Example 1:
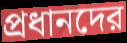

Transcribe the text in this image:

প্রধানদের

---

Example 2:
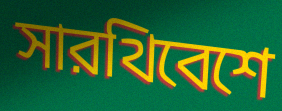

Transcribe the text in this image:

সারথিবেশে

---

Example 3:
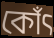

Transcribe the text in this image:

কোঁৎ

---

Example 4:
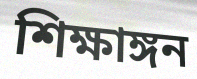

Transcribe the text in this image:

শিক্ষাঙ্গন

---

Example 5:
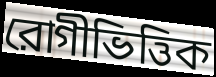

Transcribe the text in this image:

রোগীভিত্তিক